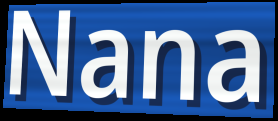
Nana